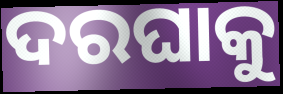
ଦରଘାକୁ